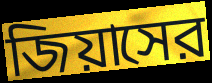
জিয়াসের